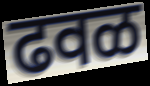
ढवळ